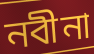
নবীনা